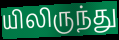
யிலிருந்து